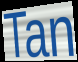
Tan